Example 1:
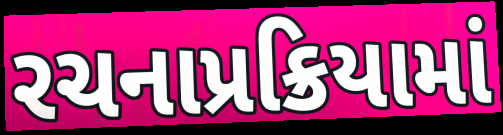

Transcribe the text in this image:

રચનાપ્રક્રિયામાં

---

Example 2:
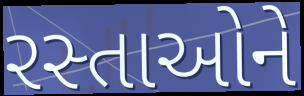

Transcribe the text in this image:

રસ્તાઓને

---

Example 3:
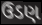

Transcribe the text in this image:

ઉડણ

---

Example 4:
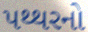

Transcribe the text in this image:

પથ્થરનો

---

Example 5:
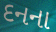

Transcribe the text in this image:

દનના